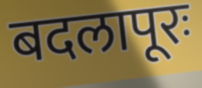
बदलापूरः